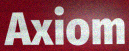
Axiom